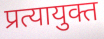
प्रत्यायुक्त